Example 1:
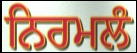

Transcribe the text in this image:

ਨਿਰਮਲੰ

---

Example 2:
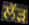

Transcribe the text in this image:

ਲੱੜ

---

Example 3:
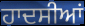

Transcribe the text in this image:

ਹਾਦਸੀਆਂ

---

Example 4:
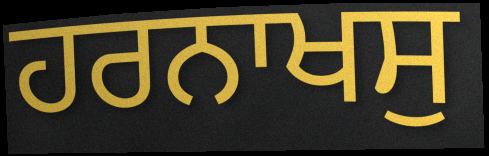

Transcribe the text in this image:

ਹਰਨਾਖਸੁ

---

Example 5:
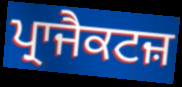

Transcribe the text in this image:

ਪ੍ਰਾਜੈਕਟਜ਼